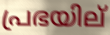
പ്രഭയില്